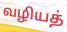
வழியத்